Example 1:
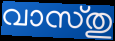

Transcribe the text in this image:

വാസ്തു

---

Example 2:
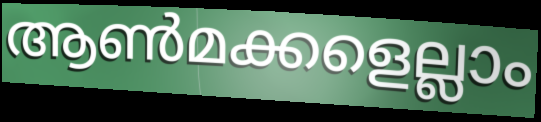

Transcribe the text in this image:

ആൺമക്കളെല്ലാം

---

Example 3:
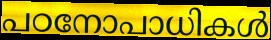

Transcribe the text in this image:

പഠനോപാധികൾ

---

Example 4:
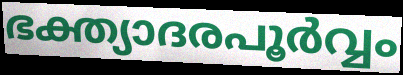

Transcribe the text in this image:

ഭക്ത്യാദരപൂർവ്വം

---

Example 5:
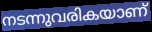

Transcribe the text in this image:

നടന്നുവരികയാണ്